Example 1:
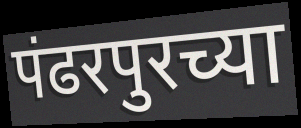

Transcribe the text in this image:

पंढरपुरच्या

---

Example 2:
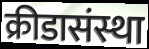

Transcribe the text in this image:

क्रीडासंस्था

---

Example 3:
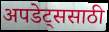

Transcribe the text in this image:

अपडेट्ससाठी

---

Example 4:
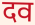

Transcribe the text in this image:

दव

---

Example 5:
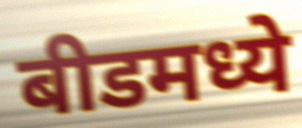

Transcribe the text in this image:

बीडमध्ये